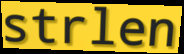
strlen